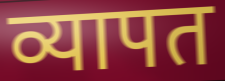
व्यापत